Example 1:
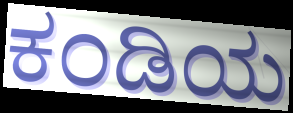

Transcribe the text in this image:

ಕಂಡಿಯ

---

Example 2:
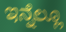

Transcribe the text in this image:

ಇನ್ನೆಲ್ಲೂ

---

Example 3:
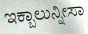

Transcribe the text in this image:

ಇಕ್ಬಾಲುನ್ನೀಸಾ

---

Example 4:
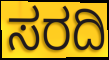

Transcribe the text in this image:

ಸರದಿ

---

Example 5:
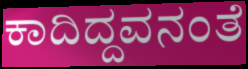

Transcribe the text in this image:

ಕಾದಿದ್ದವನಂತೆ